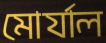
মোর্যাল